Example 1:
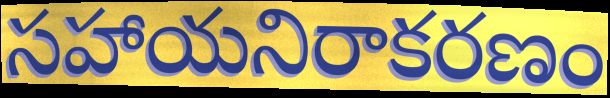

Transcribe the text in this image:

సహాయనిరాకరణం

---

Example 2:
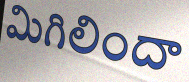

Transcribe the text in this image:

మిగిలిందా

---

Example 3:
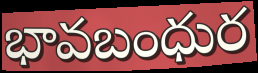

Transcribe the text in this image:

భావబంధుర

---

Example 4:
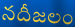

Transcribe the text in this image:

నదీజలం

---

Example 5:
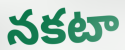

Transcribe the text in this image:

నకటా